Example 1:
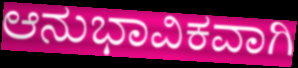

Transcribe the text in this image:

ಆನುಭಾವಿಕವಾಗಿ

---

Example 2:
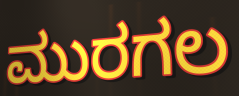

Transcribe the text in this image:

ಮುರಗಲ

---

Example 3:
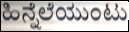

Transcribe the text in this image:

ಹಿನ್ನೆಲೆಯುಂಟು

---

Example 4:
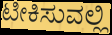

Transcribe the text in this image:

ಟೀಕಿಸುವಲ್ಲಿ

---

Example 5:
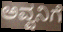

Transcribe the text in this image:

ಅವ್ವನಿಗೆ